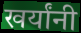
खर्यांनी